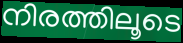
നിരത്തിലൂടെ